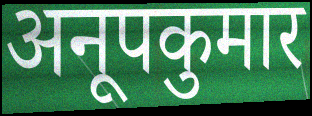
अनूपकुमार